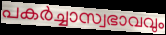
പകർച്ചാസ്വഭാവവും